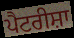
ਪੈਟਰੀਸ਼ਾ